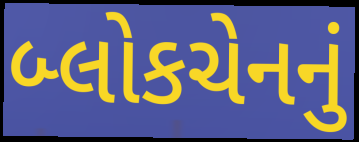
બ્લોકચેનનું